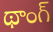
థాంగ్